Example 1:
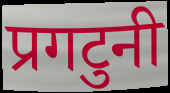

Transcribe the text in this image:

प्रगटुनी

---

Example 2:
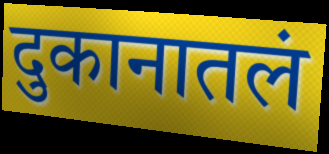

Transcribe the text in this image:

दुकानातलं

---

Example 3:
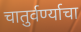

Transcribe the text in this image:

चातुर्वर्ण्याचा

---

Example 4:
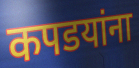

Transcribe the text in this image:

कपडयांना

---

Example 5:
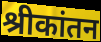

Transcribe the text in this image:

श्रीकांतन